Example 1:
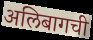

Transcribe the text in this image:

अलिबागची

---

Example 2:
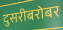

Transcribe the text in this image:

दुसरीबरोबर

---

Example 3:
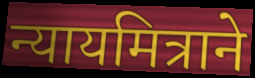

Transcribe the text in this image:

न्यायमित्राने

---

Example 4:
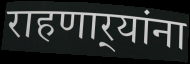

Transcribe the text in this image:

राहणार्यांना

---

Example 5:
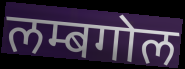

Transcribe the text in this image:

लम्बगोल